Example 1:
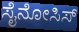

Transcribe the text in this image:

ಸೈನೋಸಿಸ್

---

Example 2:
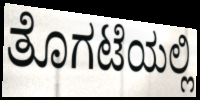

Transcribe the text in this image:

ತೊಗಟೆಯಲ್ಲಿ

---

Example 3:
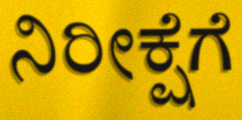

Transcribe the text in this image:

ನಿರೀಕ್ಷೆಗೆ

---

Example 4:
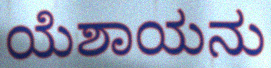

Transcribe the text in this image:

ಯೆಶಾಯನು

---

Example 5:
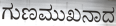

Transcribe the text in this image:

ಗುಣಮುಖನಾದ